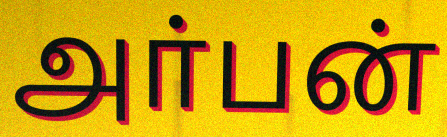
அர்பன்